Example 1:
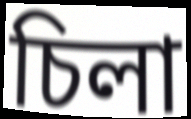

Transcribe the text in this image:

চিলা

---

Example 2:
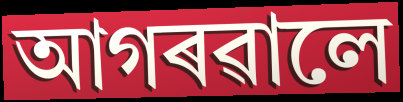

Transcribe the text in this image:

আগৰৱালে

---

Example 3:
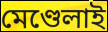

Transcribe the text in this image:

মেণ্ডেলাই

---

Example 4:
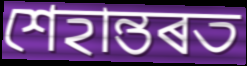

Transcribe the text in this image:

শেহান্তৰত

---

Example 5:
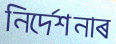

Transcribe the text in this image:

নিৰ্দেশনাৰ